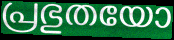
പ്രഭുതയോ